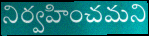
నిర్వహించమని